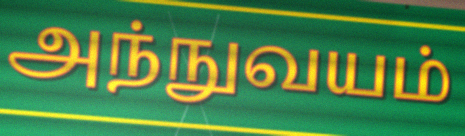
அந்நுவயம்